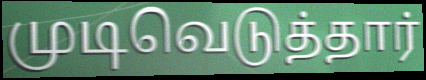
முடிவெடுத்தார்